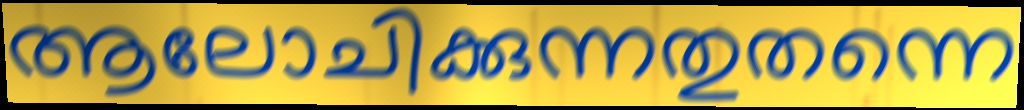
ആലോചിക്കുന്നതുതന്നെ